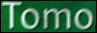
Tomo